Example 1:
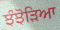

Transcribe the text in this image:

ਝੰਝੋੜਿਆ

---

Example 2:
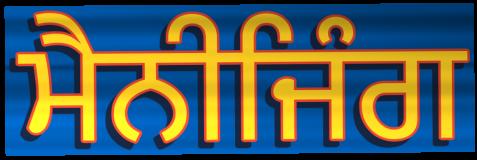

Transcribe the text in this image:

ਮੈਨੀਜਿੰਗ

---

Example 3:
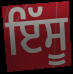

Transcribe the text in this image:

ਇੱਸੂ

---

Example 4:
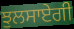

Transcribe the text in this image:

ਝੁਲਸਾਏਗੀ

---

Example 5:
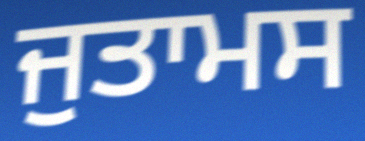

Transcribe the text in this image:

ਜੁਤਾਮਸ